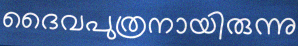
ദൈവപുത്രനായിരുന്നു